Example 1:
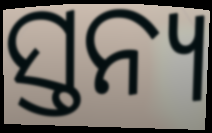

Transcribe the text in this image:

ସ୍ତନ୍ୟ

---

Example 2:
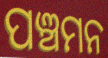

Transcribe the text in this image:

ପଞ୍ଚମନ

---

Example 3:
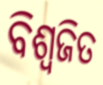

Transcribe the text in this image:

ବିଶ୍ଵଜିତ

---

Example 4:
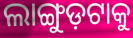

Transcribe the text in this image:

ଲାଙ୍ଗୁଡ଼ଟାକୁ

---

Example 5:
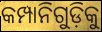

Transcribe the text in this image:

କମ୍ପାନିଗୁଡ଼ିକୁ